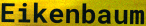
Eikenbaum